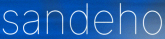
sandeho